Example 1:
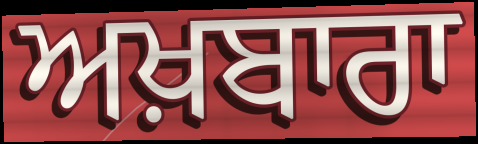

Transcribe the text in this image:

ਅਖ਼ਬਾਰਾ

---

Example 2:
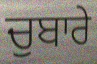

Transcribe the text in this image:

ਚੁਬਾਰੇ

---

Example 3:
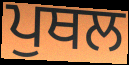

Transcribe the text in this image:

ਪੁਥਲ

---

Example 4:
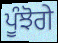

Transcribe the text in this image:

ਪੂੰਝੋਗੇ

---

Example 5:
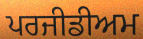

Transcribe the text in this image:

ਪਰਜੀਡੀਅਮ